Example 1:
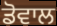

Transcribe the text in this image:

ਡੋਵਾਲ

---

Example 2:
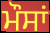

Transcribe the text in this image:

ਮੌਸਾਂ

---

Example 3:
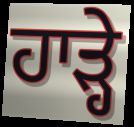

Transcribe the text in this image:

ਹਾੜ੍ਹੇ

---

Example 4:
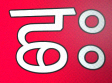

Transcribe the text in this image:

ਛਃ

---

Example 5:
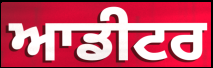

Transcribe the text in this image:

ਆਡੀਟਰ